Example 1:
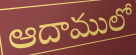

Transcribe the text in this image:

ఆదాములో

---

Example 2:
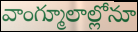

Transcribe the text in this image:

వాంగ్మూలాల్లోనూ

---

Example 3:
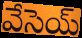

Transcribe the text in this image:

వేసెయ్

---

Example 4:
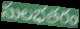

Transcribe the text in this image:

సులభతరం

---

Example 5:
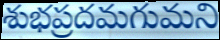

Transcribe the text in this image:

శుభప్రదమగుమని